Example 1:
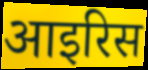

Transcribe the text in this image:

आइरिस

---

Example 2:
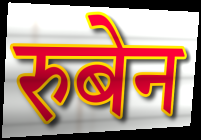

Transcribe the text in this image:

रुबेन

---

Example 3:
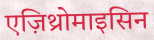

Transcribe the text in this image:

एज़िथ्रोमाइसिन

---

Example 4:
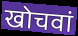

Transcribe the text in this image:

खोचवां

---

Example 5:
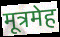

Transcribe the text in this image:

मूत्रमेह